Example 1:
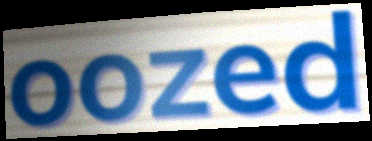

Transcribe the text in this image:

oozed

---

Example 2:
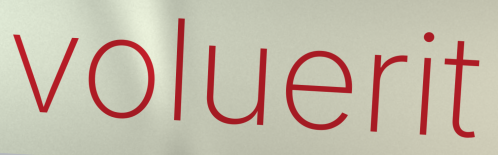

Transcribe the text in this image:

voluerit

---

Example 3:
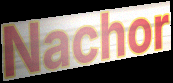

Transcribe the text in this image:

Nachor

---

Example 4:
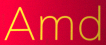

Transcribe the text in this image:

Amd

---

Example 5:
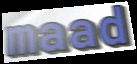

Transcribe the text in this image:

maad